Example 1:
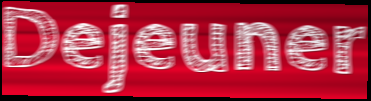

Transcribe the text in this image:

Dejeuner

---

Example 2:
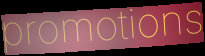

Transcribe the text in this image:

promotions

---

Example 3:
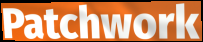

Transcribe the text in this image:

Patchwork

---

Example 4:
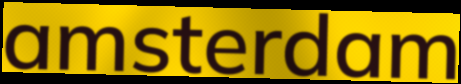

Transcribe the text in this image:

amsterdam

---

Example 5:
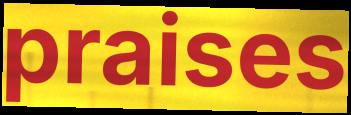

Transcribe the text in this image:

praises